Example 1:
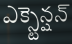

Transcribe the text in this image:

ఎక్స్టెన్షన్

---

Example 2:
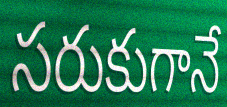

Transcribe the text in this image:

సరుకుగానే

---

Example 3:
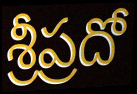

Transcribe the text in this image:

శ్రీప్రదో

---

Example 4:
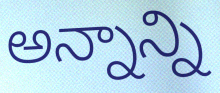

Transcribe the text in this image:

అన్నాన్ని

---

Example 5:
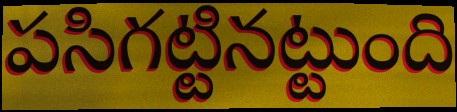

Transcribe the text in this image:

పసిగట్టినట్టుంది